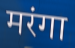
मरंगा